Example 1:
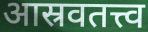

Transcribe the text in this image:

आस्रवतत्त्व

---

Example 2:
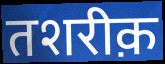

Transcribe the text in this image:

तशरीक़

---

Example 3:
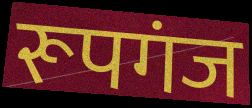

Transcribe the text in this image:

रूपगंज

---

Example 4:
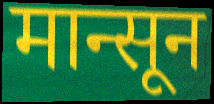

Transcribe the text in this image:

मान्सून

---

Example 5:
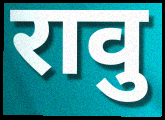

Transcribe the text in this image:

रावु